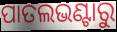
ପାତଲଭଣ୍ଟାରୁ